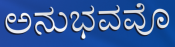
ಅನುಭವವೊ